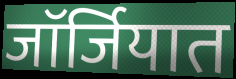
जॉर्जियात